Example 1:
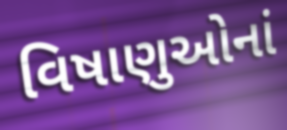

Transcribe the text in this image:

વિષાણુઓનાં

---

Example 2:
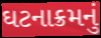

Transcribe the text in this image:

ઘટનાક્રમનું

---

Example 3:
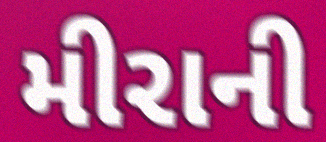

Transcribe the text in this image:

મીરાની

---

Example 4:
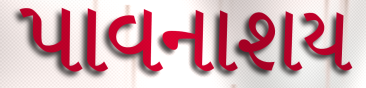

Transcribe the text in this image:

પાવનાશય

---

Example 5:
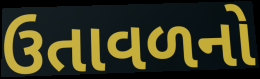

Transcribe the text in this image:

ઉતાવળનો